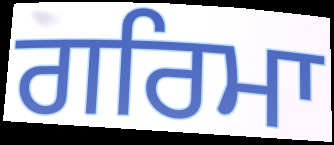
ਗਰਿਮਾ